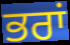
ਭਰਾਂ